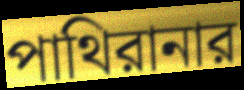
পাথিরানার